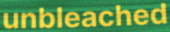
unbleached